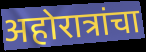
अहोरात्रांचा